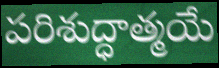
పరిశుద్ధాత్మయే